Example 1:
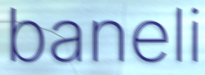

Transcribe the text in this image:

baneli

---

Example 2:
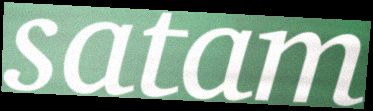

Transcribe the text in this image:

satam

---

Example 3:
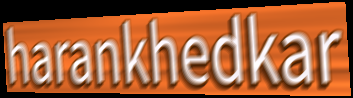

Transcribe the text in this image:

harankhedkar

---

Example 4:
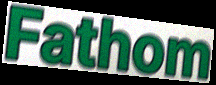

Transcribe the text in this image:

Fathom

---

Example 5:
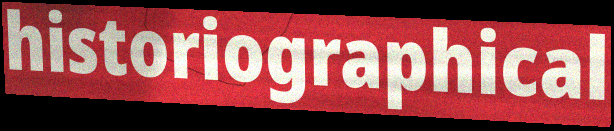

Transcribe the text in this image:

historiographical